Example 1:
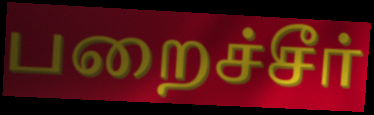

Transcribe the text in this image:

பறைச்சீர்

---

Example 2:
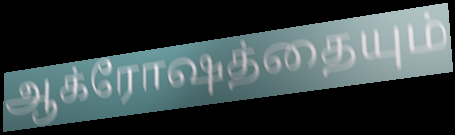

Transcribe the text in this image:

ஆக்ரோஷத்தையும்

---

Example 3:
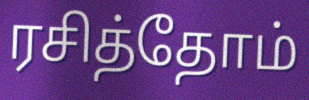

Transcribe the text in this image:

ரசித்தோம்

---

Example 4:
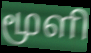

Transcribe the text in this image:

மூளி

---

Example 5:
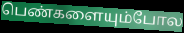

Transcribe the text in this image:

பெண்களையும்போல